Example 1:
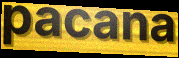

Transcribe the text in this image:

pacana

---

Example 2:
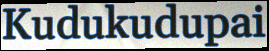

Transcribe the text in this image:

Kudukudupai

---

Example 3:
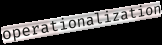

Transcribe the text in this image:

operationalization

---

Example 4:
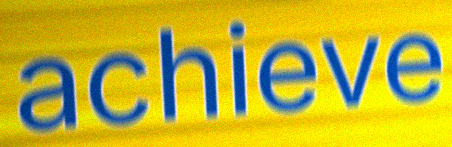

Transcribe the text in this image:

achieve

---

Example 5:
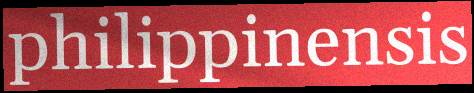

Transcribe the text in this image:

philippinensis